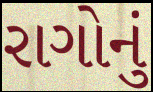
રાગોનું